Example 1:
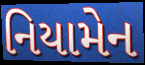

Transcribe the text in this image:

નિયામેન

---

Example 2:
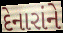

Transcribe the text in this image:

દેનારાંને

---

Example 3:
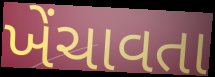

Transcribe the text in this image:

ખેંચાવતા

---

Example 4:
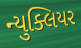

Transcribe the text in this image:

ન્યુક્લિયર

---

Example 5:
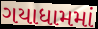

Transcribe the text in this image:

ગયાધામમાં